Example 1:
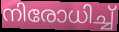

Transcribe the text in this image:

നിരോധിച്ച്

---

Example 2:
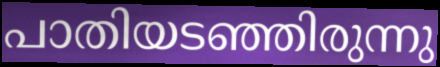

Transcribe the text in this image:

പാതിയടഞ്ഞിരുന്നു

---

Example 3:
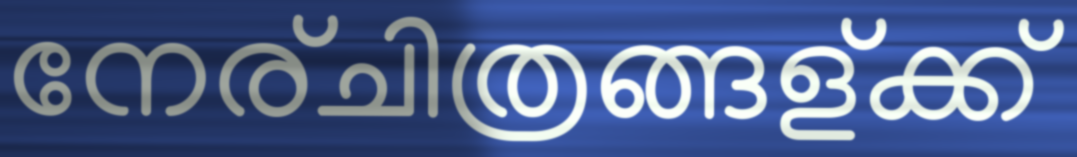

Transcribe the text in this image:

നേര്ചിത്രങ്ങള്ക്ക്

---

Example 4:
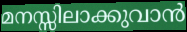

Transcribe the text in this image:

മനസ്സിലാക്കുവാൻ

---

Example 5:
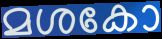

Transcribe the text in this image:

മശകോ